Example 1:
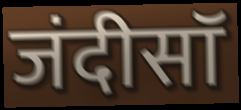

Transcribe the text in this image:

जंदीसॉ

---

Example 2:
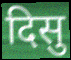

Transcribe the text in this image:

दिसु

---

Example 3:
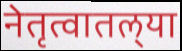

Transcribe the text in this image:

नेतृत्वातल्या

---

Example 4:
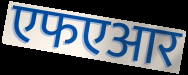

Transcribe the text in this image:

एफएआर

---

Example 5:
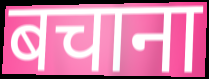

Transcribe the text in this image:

बचाना